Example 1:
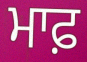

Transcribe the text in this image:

ਮਾਫ਼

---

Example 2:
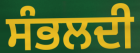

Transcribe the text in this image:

ਸੰਭਲਦੀ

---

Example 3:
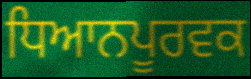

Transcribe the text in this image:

ਧਿਆਨਪੂਰਵਕ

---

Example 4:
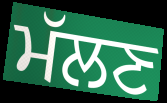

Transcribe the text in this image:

ਮੱਲਣ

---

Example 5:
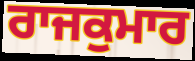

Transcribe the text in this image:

ਰਾਜਕੁਮਾਰ